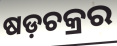
ଷଡ଼ଚକ୍ରର